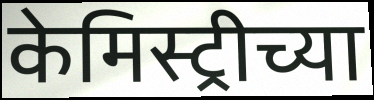
केमिस्ट्रीच्या